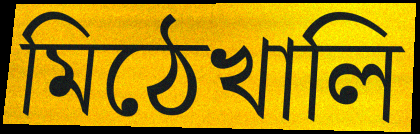
মিঠেখালি